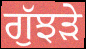
ਗੁੱਝੜੇ